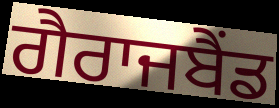
ਗੈਰਾਜਬੈਂਡ